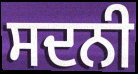
ਸਦਨੀ